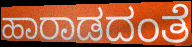
ಹಾರಾಡದಂತೆ